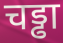
चड्ढा